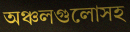
অঞ্চলগুলোসহ